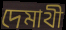
দেমাথী